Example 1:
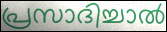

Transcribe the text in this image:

പ്രസാദിച്ചാൽ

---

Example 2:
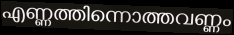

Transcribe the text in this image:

എണ്ണത്തിന്നൊത്തവണ്ണം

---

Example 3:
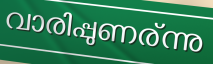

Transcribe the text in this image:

വാരിപ്പുണര്ന്നു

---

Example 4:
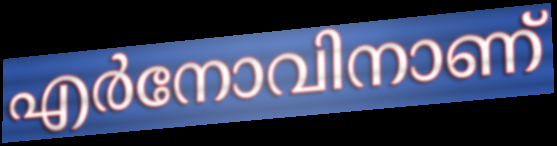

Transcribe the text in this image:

എർനോവിനാണ്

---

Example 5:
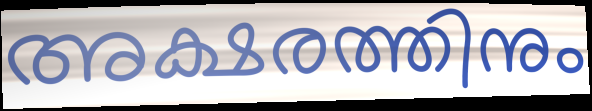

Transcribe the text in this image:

അക്ഷരത്തിനും